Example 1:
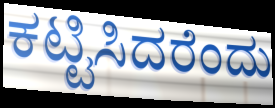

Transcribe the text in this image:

ಕಟ್ಟಿಸಿದರೆಂದು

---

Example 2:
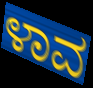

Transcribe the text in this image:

ಳಾವ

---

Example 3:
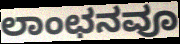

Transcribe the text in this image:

ಲಾಂಛನವೂ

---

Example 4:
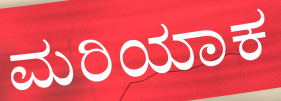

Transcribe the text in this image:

ಮರಿಯಾಕ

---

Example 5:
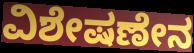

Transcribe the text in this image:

ವಿಶೇಷಣೇನ